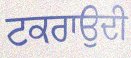
ਟਕਰਾਉਦੀ